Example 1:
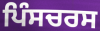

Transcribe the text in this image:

ਪਿੰਸਚਰਸ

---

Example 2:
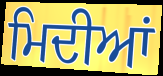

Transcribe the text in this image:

ਮਿਦੀਆਂ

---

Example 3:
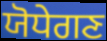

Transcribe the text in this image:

ਯੋਧੇਗਣ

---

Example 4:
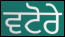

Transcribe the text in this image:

ਵਟੋਰੇ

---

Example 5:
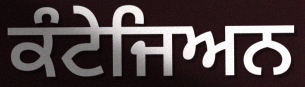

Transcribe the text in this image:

ਕੰਟੇਜਿਅਨ